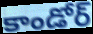
కాండోర్